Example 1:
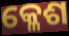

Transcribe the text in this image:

କ୍ଳେଶ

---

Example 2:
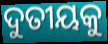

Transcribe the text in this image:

ଦୁତୀୟକୁ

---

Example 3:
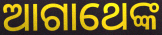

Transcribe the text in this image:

ଆଗାଥେଙ୍କ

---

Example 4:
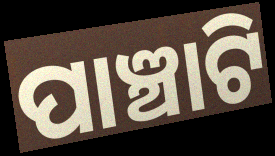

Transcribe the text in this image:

ପାଞ୍ଚାଟି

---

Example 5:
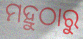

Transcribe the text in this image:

ମହୁଠାରୁ